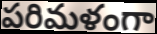
పరిమళంగా